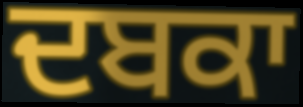
ਦਬਕਾ